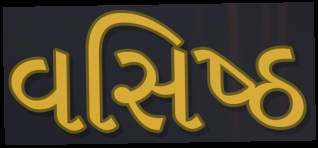
વસિષ્‍ઠ